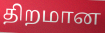
திறமான